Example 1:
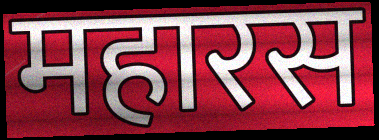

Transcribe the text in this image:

महारस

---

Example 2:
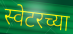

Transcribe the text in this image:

स्वेटरच्या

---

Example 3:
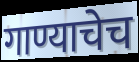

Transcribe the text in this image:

गाण्याचेच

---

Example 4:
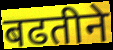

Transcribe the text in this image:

बढतीने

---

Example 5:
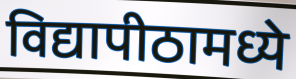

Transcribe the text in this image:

विद्यापीठामध्ये